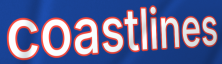
coastlines